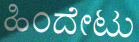
ಹಿಂದೇಟು